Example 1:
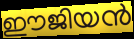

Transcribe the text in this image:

ഈജിയൻ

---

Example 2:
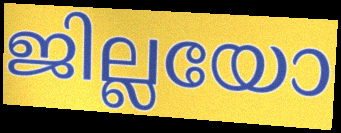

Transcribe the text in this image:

ജില്ലയോ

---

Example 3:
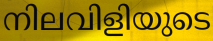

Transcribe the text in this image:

നിലവിളിയുടെ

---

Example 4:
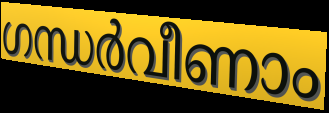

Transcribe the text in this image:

ഗന്ധർവീണാം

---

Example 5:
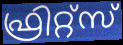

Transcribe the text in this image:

ഫ്രിറ്റ്സ്